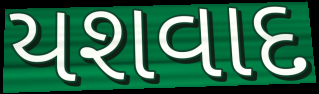
યશવાદ